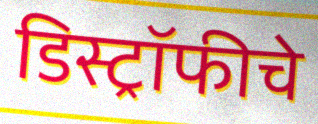
डिस्ट्रॉफीचे